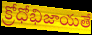
క్రోధోభిజాయతే